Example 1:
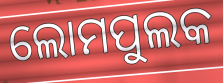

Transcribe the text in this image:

ଲୋମପୁଲକ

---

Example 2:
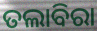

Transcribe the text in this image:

ତଲାବିରା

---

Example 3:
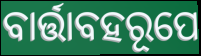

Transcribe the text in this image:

ବାର୍ତ୍ତାବହରୂପେ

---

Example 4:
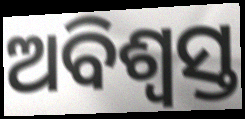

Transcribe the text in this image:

ଅବିଶ୍ୱସ୍ତ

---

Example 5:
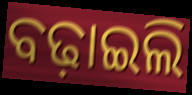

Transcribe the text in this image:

ବଢ଼ାଇଲି